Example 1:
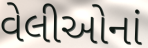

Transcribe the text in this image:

વેલીઓનાં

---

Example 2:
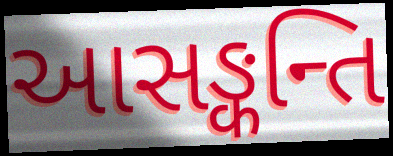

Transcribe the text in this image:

આસઙ્કન્તિ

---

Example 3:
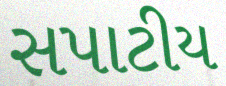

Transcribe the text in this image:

સપાટીય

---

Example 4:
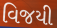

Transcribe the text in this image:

વિજયી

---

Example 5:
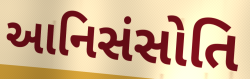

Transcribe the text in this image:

આનિસંસોતિ